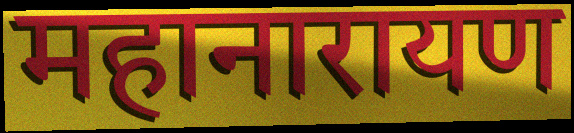
महानारायण